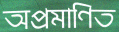
অপ্ৰমাণিত